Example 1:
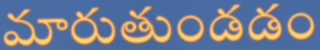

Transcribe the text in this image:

మారుతుండడం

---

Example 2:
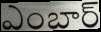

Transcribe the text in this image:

ఎంబార్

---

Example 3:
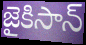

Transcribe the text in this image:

జైకిసాన్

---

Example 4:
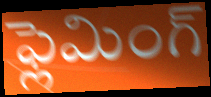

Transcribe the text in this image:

ఫ్లెమింగ్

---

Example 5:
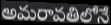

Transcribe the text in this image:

అమరావతిలోనే